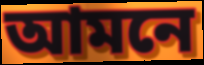
আমনে